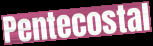
Pentecostal